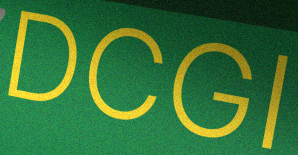
DCGI